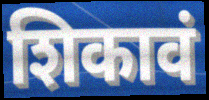
शिकावं